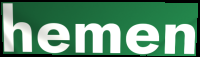
hemen